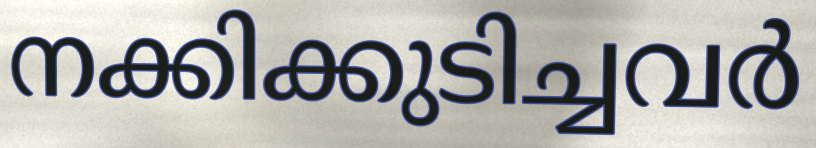
നക്കിക്കുടിച്ചവർ